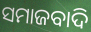
ସମାଜବାଦି